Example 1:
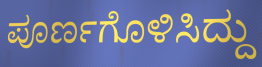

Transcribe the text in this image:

ಪೂರ್ಣಗೊಳಿಸಿದ್ದು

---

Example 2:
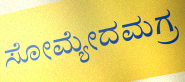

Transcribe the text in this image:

ಸೋಮ್ಯೇದಮಗ್ರ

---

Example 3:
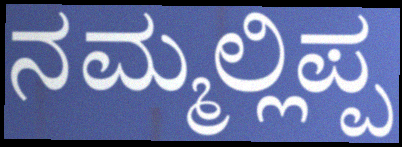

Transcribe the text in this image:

ನಮ್ಮಲ್ಲಿಪ್ಪ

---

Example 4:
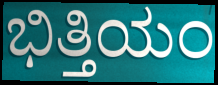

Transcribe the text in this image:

ಭಿತ್ತಿಯಂ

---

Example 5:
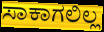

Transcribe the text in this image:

ಸಾಕಾಗಲಿಲ್ಲ